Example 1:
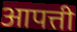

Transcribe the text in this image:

आपत्ती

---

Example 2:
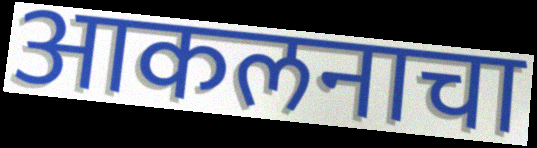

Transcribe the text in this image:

आकलनाचा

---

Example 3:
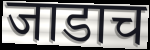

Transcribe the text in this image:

जाडाच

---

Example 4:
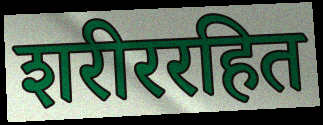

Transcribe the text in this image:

शरीररहित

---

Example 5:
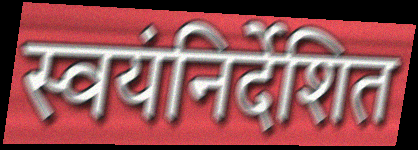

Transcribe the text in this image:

स्वयंनिर्देशित